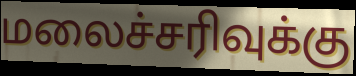
மலைச்சரிவுக்கு